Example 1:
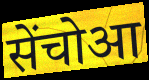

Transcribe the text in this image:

सेंचोआ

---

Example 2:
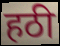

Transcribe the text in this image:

हठी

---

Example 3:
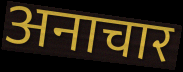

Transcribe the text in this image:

अनाचार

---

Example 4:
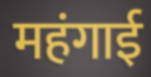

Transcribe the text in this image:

महंगाई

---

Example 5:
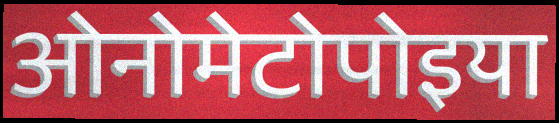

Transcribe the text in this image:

ओनोमेटोपोइया